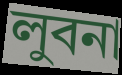
লুবনা